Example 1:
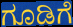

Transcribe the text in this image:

ಗೂಡಿಗೆ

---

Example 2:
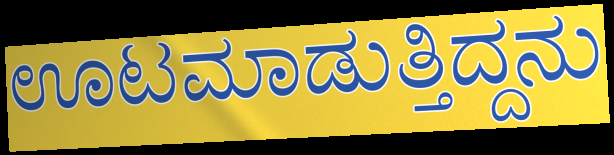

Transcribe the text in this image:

ಊಟಮಾಡುತ್ತಿದ್ದನು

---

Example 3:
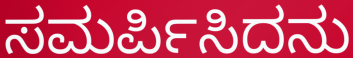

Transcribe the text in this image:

ಸಮರ್ಪಿಸಿದನು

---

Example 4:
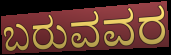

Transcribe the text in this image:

ಬರುವವರ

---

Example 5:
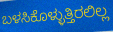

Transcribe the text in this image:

ಬಳಸಿಕೊಳ್ಳುತ್ತಿರಲಿಲ್ಲ